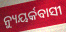
ନ୍ୟୁୟର୍କବାସୀ